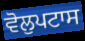
ਵੋਲੁਪਟਾਸ